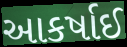
આકર્ષાઈ